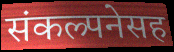
संकल्पनेसह